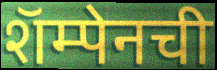
शॅम्पेनची